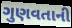
ગુણવતાની